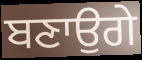
ਬਣਾਉਗੇ